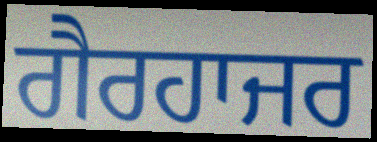
ਗੈਰਹਾਜਰ